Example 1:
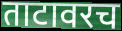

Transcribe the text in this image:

ताटावरच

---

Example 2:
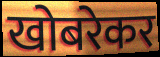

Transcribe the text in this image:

खोबरेकर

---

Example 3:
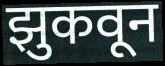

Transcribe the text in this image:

झुकवून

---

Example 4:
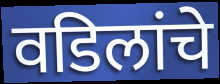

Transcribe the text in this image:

वडिलांचे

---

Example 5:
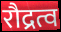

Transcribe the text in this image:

रौद्रत्व